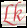
Lk